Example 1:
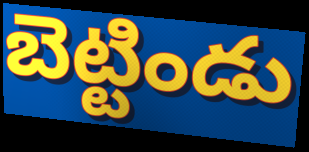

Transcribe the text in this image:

బెట్టిండు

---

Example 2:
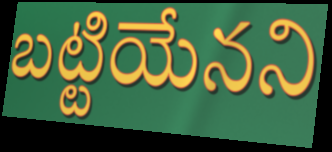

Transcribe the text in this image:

బట్టియేనని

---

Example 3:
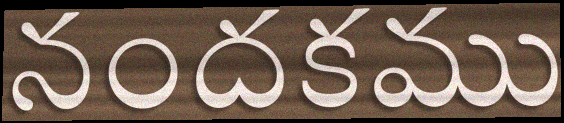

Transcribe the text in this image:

నందకము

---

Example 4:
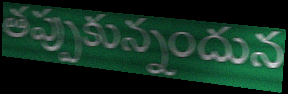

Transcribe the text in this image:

తప్పుకున్నందున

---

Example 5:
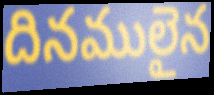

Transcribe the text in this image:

దినములైన